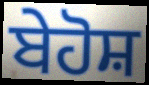
ਬੇਹੋਸ਼